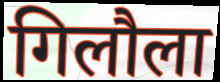
गिलौला